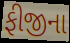
ફીજીના